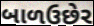
બાળઉછેર